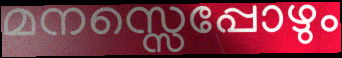
മനസ്സെപ്പോഴും